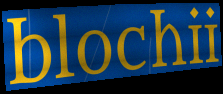
blochii